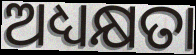
ଅଧ୍ୟକ୍ଷତା